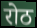
रोठ